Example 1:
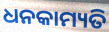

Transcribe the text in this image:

ଧନକାମ୍ୟତି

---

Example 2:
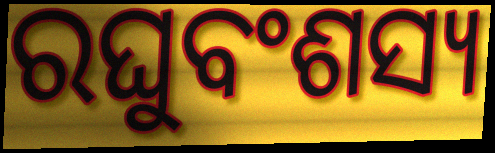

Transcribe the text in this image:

ରଘୁବଂଶସ୍ୟ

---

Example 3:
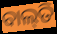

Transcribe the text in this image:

ବାଲ୍‌ତି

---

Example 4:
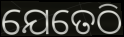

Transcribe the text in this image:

ଯେତେଠି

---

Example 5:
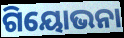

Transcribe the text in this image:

ଗିୟୋଭନା